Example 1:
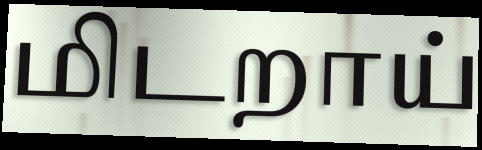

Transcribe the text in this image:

மிடறாய்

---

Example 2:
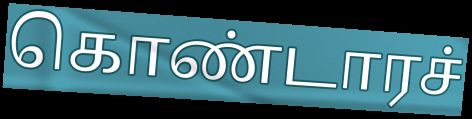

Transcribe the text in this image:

கொண்டாரச்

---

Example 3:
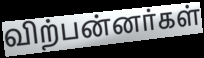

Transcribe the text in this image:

விற்பன்னர்கள்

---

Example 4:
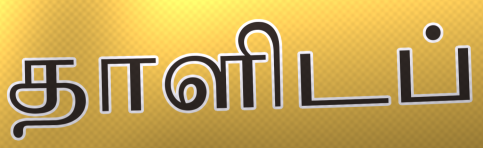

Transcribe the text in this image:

தாளிடப்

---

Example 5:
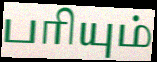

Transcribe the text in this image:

பரியும்